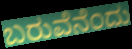
ಬರುವೆನೆಂದು